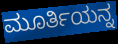
ಮೂರ್ತಿಯನ್ನ